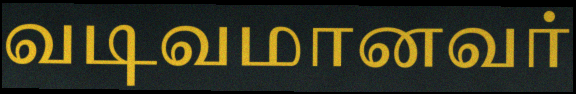
வடிவமானவர்